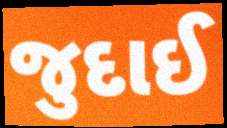
જુદાઈ